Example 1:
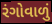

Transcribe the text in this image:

રંગોવાળું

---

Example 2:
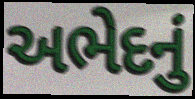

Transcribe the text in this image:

અભેદનું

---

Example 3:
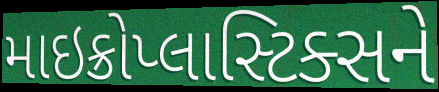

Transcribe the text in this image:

માઇક્રોપ્લાસ્ટિક્સને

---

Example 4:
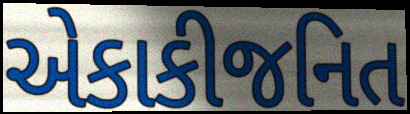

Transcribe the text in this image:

એકાકીજનિત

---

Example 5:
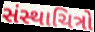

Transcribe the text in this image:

સંસ્થાચિત્રો